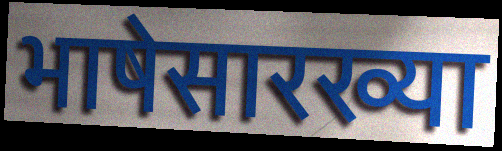
भाषेसारख्या